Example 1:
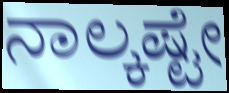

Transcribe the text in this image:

ನಾಲ್ಕಷ್ಟೇ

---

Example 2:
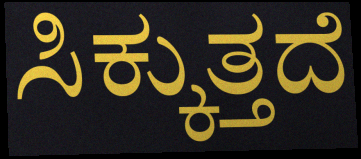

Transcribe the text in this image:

ಸಿಕ್ಕುತ್ತದೆ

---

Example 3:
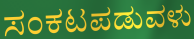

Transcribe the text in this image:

ಸಂಕಟಪಡುವಳು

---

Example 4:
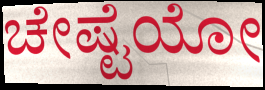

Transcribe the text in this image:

ಚೇಷ್ಟೆಯೋ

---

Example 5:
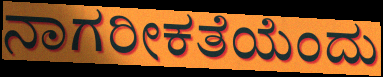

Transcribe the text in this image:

ನಾಗರೀಕತೆಯೆಂದು